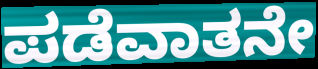
ಪಡೆವಾತನೇ